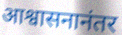
आश्वासनानंतर